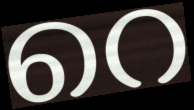
റെ